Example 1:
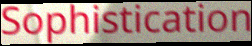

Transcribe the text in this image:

Sophistication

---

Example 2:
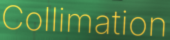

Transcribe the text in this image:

Collimation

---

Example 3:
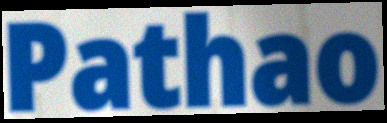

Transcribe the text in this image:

Pathao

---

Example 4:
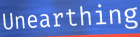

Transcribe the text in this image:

Unearthing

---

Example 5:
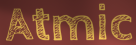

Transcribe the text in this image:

Atmic